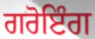
ਗਰੋਇੰਗ